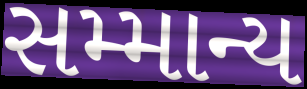
સમ્માન્ય